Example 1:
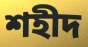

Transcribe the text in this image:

শহীদ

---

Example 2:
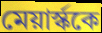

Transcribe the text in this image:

মেয়ার্স্ককে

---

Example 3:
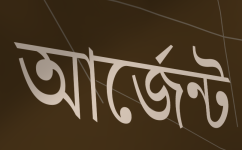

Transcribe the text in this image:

আর্জেন্ট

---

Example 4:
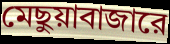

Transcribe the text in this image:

মেছুয়াবাজারে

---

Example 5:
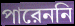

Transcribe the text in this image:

পারেননি